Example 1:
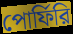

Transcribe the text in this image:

পোর্ফিরি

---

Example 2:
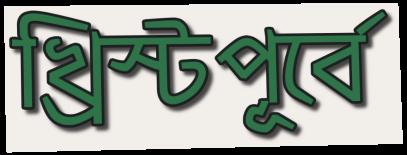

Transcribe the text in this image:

খ্রিস্টপূর্বে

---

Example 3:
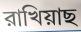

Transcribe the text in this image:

রাখিয়াছ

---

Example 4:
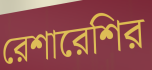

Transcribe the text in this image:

রেশারেশির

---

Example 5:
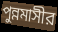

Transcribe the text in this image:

পুন্নমাসীর